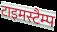
टाइमस्टैम्प